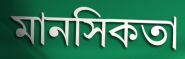
মানসিকতা